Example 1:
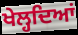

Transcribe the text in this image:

ਖੇਲ੍ਹਦਿਆਂ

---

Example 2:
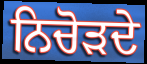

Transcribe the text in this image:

ਨਿਚੋੜਦੇ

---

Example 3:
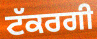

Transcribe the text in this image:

ਟੱਕਰਗੀ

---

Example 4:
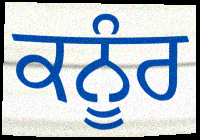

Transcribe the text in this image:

ਕਨੂੰਰ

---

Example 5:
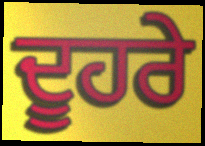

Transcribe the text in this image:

ਦੂਹਰੇ